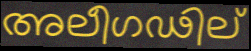
അലീഗഢില്